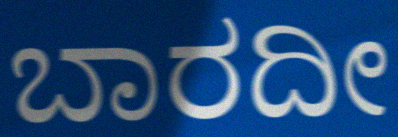
ಬಾರದೀ